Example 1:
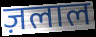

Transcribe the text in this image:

ज़लाल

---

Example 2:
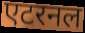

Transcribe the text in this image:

एटरनल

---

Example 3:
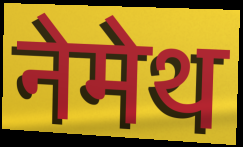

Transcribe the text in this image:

नेमेथ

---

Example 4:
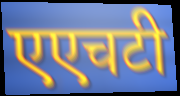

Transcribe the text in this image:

एएचटी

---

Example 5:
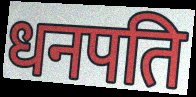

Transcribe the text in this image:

धनपति